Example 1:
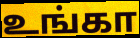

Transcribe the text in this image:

உங்கா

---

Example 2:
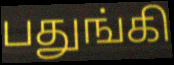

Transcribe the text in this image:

பதுங்கி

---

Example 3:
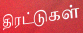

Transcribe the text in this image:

திரட்டுகள்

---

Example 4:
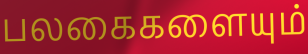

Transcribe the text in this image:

பலகைகளையும்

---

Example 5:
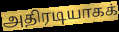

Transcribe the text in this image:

அதிரடியாகக்